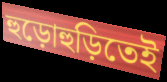
হুড়োহুড়িতেই